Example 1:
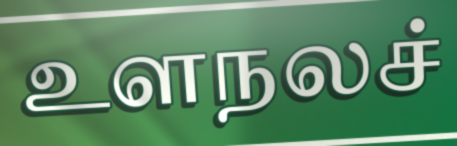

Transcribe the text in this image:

உளநலச்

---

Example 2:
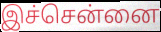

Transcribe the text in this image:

இச்சென்னை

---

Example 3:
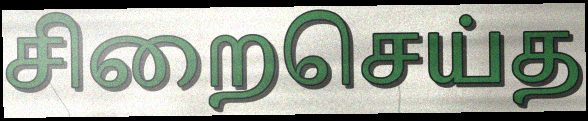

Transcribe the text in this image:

சிறைசெய்த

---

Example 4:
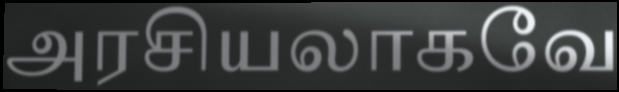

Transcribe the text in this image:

அரசியலாகவே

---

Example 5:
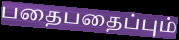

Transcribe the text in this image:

பதைபதைப்பும்